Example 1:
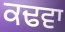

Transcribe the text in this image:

ਕਢਵਾ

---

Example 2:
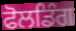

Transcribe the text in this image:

ਫੋਲਡਿੰਗ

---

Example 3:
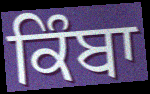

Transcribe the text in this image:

ਕਿੰਬਾ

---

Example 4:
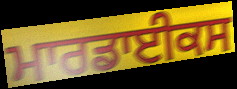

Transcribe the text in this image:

ਮਾਰਡਾਈਕਸ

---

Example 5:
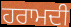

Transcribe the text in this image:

ਹਰਾਮਦੀ